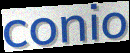
conio